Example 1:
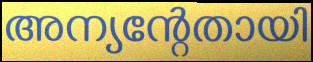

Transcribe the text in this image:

അന്യന്റേതായി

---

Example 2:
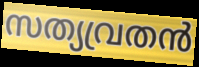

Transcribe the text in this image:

സത്യവ്രതൻ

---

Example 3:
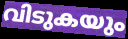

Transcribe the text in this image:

വിടുകയും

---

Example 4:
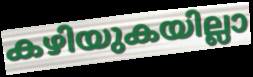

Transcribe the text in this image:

കഴിയുകയില്ലാ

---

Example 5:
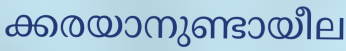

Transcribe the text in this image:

ക്കരയാനുണ്ടായീല